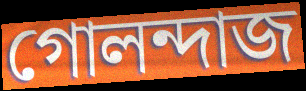
গোলন্দাজ